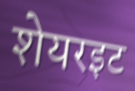
शेयरइट